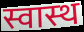
स्वास्थ